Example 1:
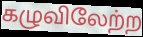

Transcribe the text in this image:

கழுவிலேற்ற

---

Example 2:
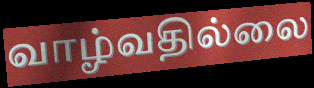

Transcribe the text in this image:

வாழ்வதில்லை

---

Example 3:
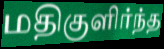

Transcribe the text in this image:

மதிகுளிர்ந்த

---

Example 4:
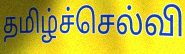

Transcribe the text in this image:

தமிழ்ச்செல்வி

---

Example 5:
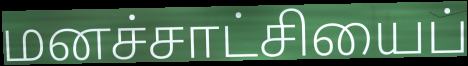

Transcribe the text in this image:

மனச்சாட்சியைப்